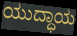
ಯುದ್ಧಾಯ